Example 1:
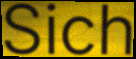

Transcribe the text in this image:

Sich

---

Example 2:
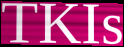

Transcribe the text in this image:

TKIs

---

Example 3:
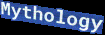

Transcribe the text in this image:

Mythology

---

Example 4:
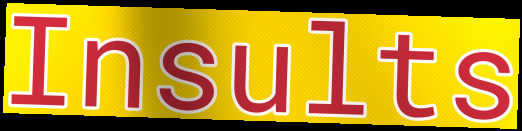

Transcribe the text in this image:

Insults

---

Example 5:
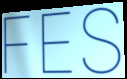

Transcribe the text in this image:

FES